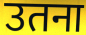
उतना